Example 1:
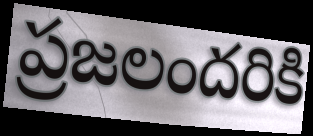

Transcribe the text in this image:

ప్రజలందరికి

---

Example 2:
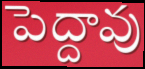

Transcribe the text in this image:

పెద్దావు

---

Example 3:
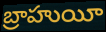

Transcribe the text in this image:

బ్రాహుయీ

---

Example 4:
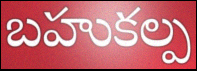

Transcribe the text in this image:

బహుకల్ప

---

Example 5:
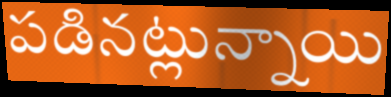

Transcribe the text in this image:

పడినట్లున్నాయి